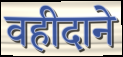
वहीदाने